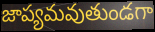
జాప్యమవుతుండగా